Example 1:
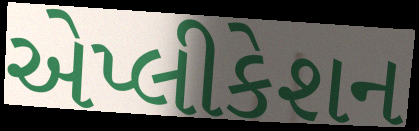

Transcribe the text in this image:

એપ્લીકેશન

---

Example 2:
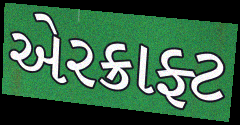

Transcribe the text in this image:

એરક્રાફ્ટ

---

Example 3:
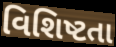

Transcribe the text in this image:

વિશિષ્ટતા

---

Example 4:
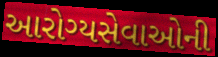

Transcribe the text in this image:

આરોગ્યસેવાઓની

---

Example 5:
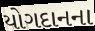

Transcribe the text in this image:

યોગદાનના